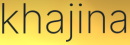
khajina